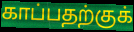
காப்பதற்குக்